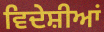
ਵਿਦੇਸ਼ੀਆਂ